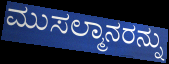
ಮುಸಲ್ಮಾನರನ್ನು